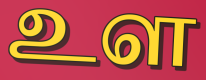
உள